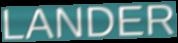
LANDER